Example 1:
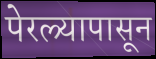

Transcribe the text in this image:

पेरल्यापासून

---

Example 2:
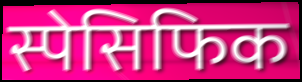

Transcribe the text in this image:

स्पेसिफिक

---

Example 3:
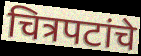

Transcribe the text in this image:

चित्रपटांचे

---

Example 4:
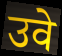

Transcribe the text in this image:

उवे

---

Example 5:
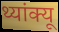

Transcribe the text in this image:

थ्यांक्यू